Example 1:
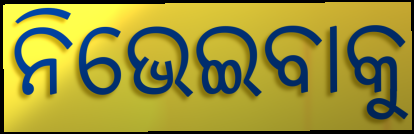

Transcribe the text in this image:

ନିଭେଇବାକୁ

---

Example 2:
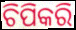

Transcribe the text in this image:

ଚିପିକରି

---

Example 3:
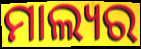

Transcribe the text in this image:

ମାଲ୍ୟର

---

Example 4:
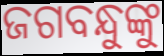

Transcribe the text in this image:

ଜଗବନ୍ଧୁଙ୍କୁ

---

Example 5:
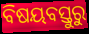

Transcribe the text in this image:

ବିଷୟବସ୍ତୁରୁ